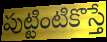
పుట్టింటికొస్తే